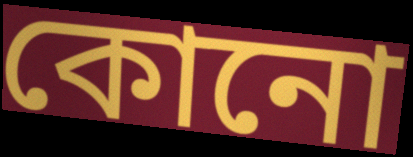
কোনো